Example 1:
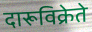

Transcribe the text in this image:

दारूविक्रेते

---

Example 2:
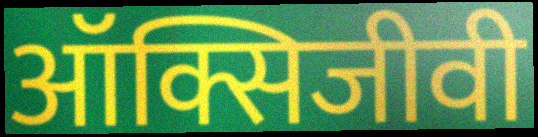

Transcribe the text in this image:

ऑक्सिजीवी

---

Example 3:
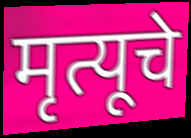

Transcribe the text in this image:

मृत्यूचे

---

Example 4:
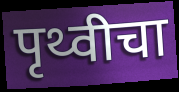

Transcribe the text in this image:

पृथ्वीचा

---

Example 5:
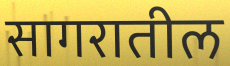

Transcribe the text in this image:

सागरातील